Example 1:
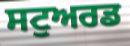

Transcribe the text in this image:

ਸਟੁਅਰਡ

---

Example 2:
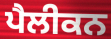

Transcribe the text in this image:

ਪੈਲੀਕਨ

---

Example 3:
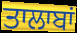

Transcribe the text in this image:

ਤਾਲਾਬਾਂ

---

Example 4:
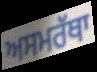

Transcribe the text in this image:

ਅਸਮਰੱਥਾ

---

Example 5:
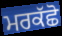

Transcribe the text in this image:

ਮਰਕੱਛੋ